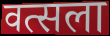
वत्सला